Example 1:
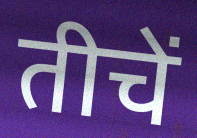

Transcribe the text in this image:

तीचें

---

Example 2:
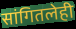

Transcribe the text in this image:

सांगितलेही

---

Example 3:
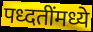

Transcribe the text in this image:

पध्दतींमध्ये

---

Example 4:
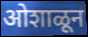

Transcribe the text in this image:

ओशाळून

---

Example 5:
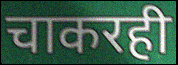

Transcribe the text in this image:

चाकरही